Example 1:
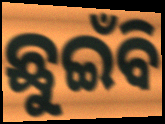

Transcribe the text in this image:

ଛୁଇଁବି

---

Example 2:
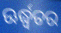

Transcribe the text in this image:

ଊର୍ଦ୍ଧ୍ଵତର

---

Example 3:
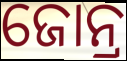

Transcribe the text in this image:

ଜୋନ୍ର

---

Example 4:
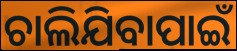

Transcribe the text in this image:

ଚାଲିଯିବାପାଇଁ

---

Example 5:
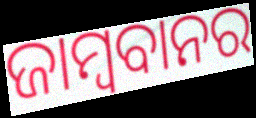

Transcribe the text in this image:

ଜାମ୍ବବାନର